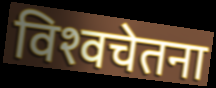
विश्वचेतना